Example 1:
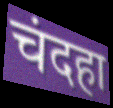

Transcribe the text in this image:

चंदहा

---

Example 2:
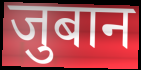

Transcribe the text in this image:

जुबान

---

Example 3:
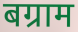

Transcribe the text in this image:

बग्राम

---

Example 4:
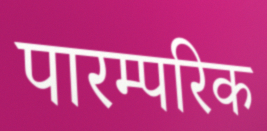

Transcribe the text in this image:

पारम्परिक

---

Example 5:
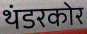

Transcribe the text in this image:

थंडरकोर